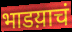
भाडय़ाचं